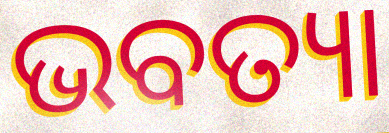
ଭବତ୍ୟା